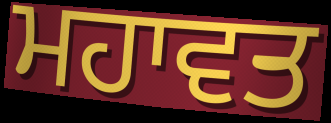
ਮਹਾਵਤ